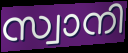
സ്വാനി